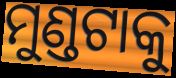
ମୁଣ୍ଡଟାକୁ